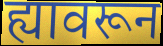
ह्यावरून